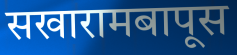
सखारामबापूस